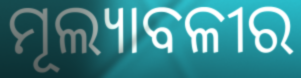
ମୂଲ୍ୟାବଳୀର